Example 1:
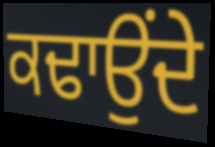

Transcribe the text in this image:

ਕਢਾਉਂਦੇ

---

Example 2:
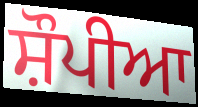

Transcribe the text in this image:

ਸ਼ੌਪੀਆ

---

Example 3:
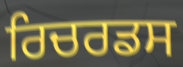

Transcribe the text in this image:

ਰਿਚਰਡਸ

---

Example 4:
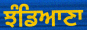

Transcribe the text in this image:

ਝੰਡਿਆਣਾ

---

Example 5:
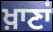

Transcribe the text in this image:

ਖ਼ਾਣਾਂ